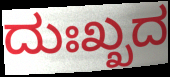
ದುಃಖ್ಖದ